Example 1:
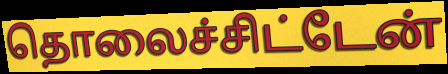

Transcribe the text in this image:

தொலைச்சிட்டேன்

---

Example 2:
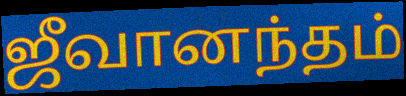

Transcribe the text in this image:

ஜீவானந்தம்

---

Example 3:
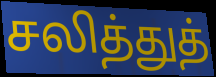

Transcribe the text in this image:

சலித்துத்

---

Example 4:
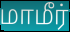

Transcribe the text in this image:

மாமீர்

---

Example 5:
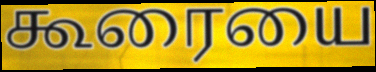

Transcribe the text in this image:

கூரையை